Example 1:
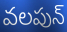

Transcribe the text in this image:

వలపున్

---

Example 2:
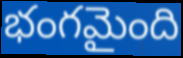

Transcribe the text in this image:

భంగమైంది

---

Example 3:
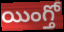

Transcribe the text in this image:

యింగ్తో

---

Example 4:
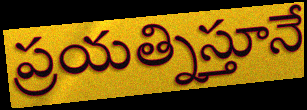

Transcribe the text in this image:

ప్రయత్నిస్తూనే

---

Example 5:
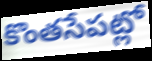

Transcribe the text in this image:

కొంతసేపట్లో